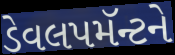
ડેવલપમૅન્ટને